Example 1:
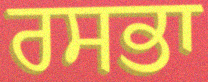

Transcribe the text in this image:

ਰਸਭਾ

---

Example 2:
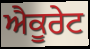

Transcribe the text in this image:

ਐਕੂਰੇਟ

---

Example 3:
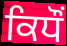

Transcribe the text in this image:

ਕਿਧੌਂ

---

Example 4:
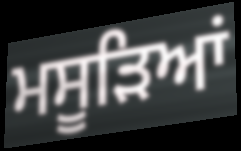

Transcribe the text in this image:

ਮਸੂੜਿਆਂ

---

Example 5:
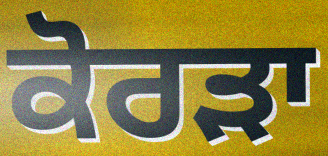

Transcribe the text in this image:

ਕੋਰੜਾ